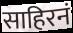
साहिरनं